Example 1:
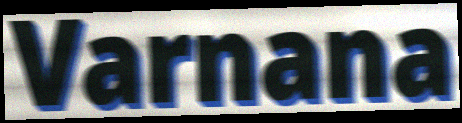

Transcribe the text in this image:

Varnana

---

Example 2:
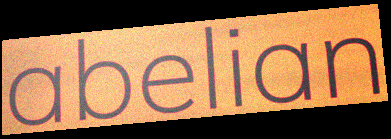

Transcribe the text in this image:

abelian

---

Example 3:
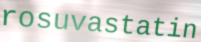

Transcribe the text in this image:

rosuvastatin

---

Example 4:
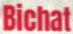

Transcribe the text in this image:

Bichat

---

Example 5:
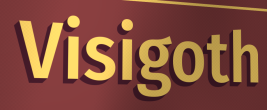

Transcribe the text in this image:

Visigoth